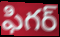
ఫిగర్